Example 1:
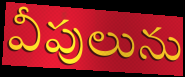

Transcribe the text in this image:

వీపులును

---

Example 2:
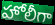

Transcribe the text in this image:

హోలీగా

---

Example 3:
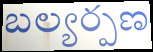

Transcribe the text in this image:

బల్యర్పణ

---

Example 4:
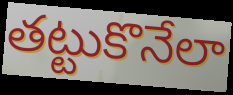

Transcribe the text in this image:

తట్టుకొనేలా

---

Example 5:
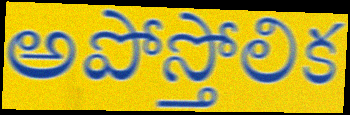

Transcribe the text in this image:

అపోస్తోలిక